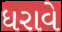
ધરાવે